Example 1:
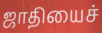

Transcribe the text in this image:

ஜாதியைச்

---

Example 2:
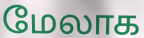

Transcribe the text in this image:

மேலாக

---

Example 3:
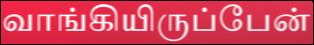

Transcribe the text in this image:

வாங்கியிருப்பேன்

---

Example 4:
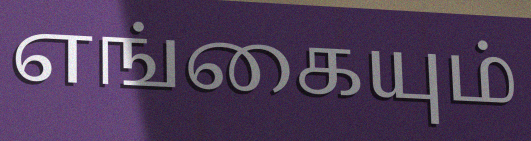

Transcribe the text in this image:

எங்கையும்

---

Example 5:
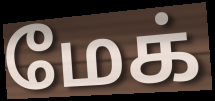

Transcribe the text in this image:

மேக்